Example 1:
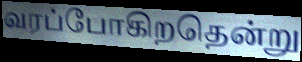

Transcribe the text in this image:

வரப்போகிறதென்று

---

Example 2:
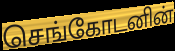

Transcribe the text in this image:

செங்கோடனின்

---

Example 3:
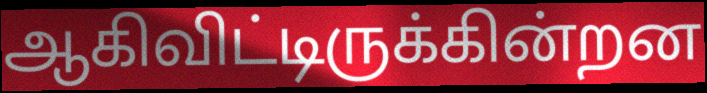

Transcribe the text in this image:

ஆகிவிட்டிருக்கின்றன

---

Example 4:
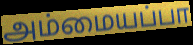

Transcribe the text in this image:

அம்மையப்பா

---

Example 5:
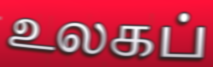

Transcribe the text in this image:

உலகப்